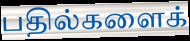
பதில்களைக்